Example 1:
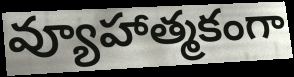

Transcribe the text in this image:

వ్యూహాత్మకంగా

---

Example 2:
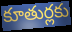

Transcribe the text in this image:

కూతుర్లకు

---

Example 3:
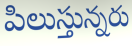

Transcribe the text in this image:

పిలుస్తున్నరు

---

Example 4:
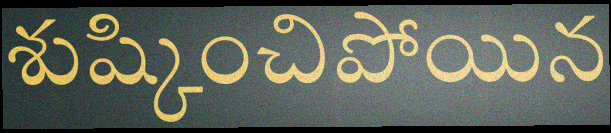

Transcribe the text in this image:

శుష్కించిపోయిన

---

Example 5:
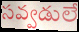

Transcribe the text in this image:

సవ్వడులే